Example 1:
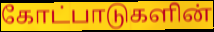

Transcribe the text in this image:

கோட்பாடுகளின்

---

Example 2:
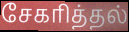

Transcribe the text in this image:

சேகரித்தல்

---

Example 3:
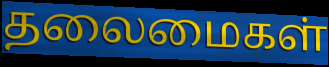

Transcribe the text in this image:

தலைமைகள்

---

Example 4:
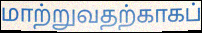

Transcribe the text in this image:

மாற்றுவதற்காகப்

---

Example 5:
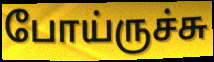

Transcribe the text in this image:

போய்ருச்சு